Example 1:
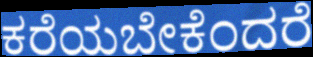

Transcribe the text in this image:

ಕರೆಯಬೇಕೆಂದರೆ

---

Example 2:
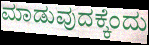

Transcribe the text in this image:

ಮಾಡುವುದಕ್ಕೆಂದು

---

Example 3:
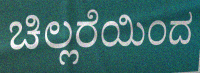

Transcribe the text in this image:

ಚಿಲ್ಲರೆಯಿಂದ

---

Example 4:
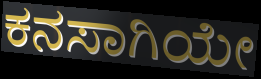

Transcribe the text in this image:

ಕನಸಾಗಿಯೇ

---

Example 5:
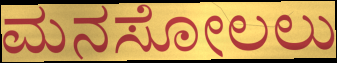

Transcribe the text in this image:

ಮನಸೋಲಲು